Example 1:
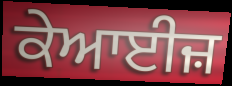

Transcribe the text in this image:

ਕੇਆਈਜ਼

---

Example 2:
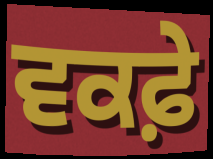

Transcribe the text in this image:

ਵਕਫ਼ੇ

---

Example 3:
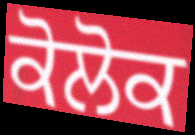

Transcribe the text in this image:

ਕੋਲੋਕ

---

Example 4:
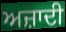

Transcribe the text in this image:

ਅਜ਼ਾਦੀ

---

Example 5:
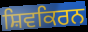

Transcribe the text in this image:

ਸ਼ਿਵਕਿਰਨ